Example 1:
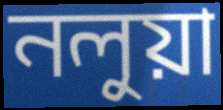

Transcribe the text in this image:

নলুয়া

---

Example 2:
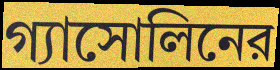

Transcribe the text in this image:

গ্যাসোলিনের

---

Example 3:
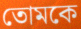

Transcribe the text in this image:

তোমকে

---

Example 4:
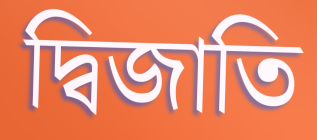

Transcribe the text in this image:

দ্বিজাতি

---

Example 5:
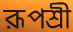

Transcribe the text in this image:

রূপশ্রী